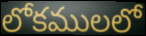
లోకములలో